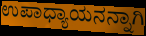
ಉಪಾಧ್ಯಾಯನನ್ನಾಗಿ